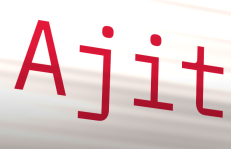
Ajit